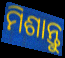
ମିଶାନ୍ତୁ